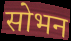
सोभन